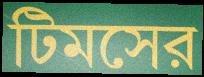
টিমসের